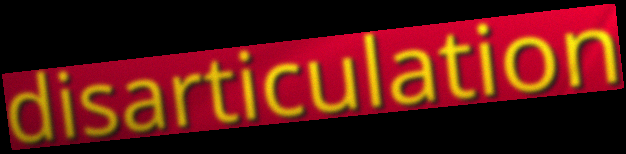
disarticulation